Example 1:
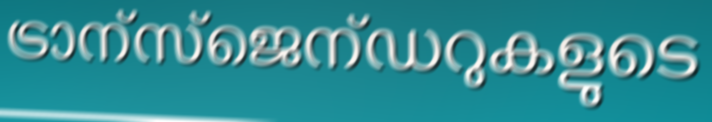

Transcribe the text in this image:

ട്രാന്സ്ജെന്ഡറുകളുടെ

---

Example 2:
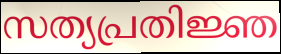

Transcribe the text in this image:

സത്യപ്രതിജ്ഞ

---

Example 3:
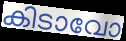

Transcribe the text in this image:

കിടാവോ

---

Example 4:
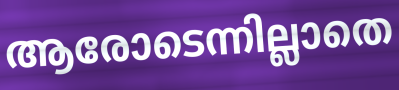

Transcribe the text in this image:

ആരോടെന്നില്ലാതെ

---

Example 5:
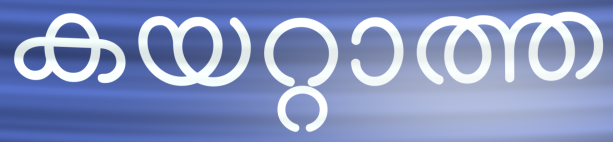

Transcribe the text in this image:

കയറ്റാത്ത